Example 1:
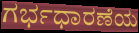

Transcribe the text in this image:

ಗರ್ಭಧಾರಣೆಯ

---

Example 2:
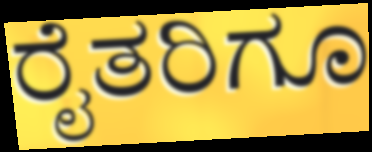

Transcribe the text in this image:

ರೈತರಿಗೂ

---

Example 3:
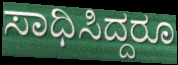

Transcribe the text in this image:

ಸಾಧಿಸಿದ್ದರೂ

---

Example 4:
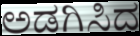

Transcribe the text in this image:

ಅಡಗಿಸಿದ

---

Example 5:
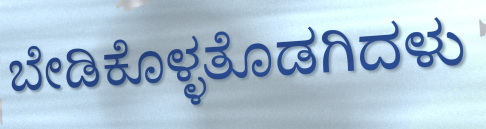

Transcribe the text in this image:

ಬೇಡಿಕೊಳ್ಳತೊಡಗಿದಳು